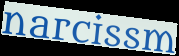
narcissm